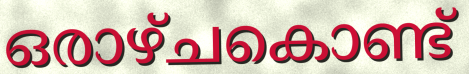
ഒരാഴ്ചകൊണ്ട്